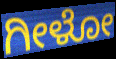
ಗೀಳೋ